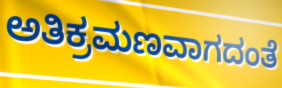
ಅತಿಕ್ರಮಣವಾಗದಂತೆ